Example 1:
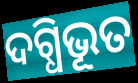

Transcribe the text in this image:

ଦଗ୍ଧିଭୂତ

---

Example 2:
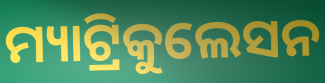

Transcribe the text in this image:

ମ୍ୟାଟ୍ରିକୁଲେସନ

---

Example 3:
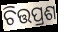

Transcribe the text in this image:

ଚିତ୍ତପ୍ରଶ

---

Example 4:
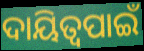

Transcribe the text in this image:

ଦାୟିତ୍ୱପାଇଁ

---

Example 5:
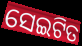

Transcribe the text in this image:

ସେଇଟିତ